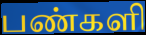
பண்களி